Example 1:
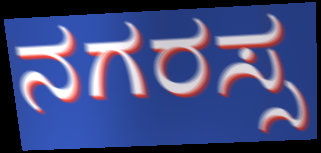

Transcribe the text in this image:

ನಗರಸ್ಸ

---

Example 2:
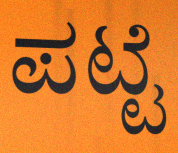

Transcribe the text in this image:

ಪಟ್ಟೆ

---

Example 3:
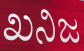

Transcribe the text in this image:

ಖನಿಜ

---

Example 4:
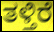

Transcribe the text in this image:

ತಳ್ತಿರೆ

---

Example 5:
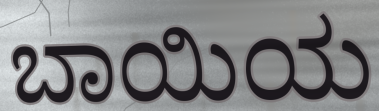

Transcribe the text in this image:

ಬಾಯಿಯ